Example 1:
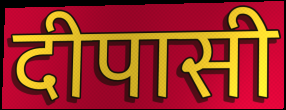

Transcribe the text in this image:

दीपासी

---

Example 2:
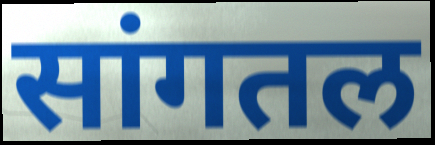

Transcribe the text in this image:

सांगतल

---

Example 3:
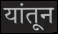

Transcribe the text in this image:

यांतून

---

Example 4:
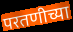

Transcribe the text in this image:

परतणीच्या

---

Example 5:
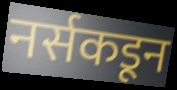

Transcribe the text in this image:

नर्सकडून